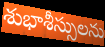
శుభాశీస్సులను